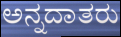
ಅನ್ನದಾತರು